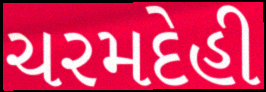
ચરમદેહી